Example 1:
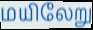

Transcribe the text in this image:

மயிலேறு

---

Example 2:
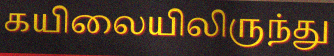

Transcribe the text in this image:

கயிலையிலிருந்து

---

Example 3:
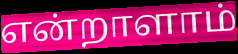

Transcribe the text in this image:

என்றாளாம்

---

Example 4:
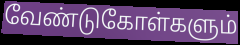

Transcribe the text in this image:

வேண்டுகோள்களும்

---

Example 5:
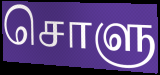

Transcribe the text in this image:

சொளு